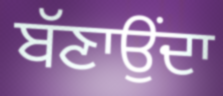
ਬੱਣਾਉਂਦਾ